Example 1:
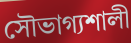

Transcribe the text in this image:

সৌভাগ্যশালী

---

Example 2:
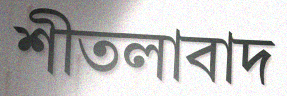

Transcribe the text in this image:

শীতলাবাদ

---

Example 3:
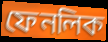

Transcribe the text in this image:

ফেনলিক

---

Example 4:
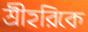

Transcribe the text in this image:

শ্রীহরিকে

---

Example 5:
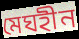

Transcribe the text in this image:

মেঘহীন